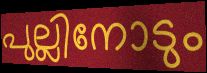
പുല്ലിനോടും